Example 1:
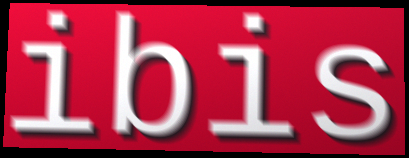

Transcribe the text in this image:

ibis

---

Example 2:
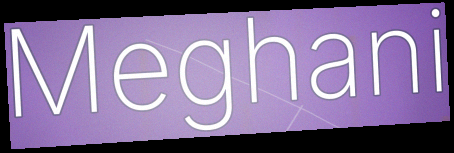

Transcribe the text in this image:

Meghani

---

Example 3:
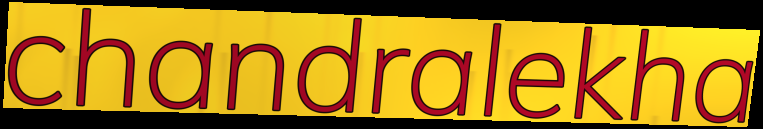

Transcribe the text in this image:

chandralekha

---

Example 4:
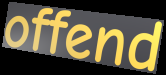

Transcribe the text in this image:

offend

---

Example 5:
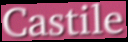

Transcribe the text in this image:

Castile